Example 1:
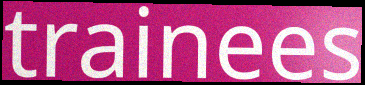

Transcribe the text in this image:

trainees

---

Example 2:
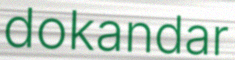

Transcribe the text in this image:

dokandar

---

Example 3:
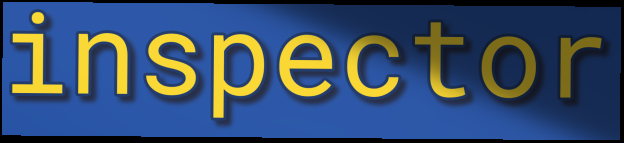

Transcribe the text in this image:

inspector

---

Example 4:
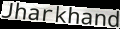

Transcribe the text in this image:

Jharkhand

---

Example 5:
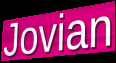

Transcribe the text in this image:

Jovian